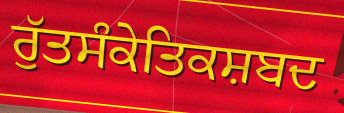
ਰੁੱਤਸੰਕੇਤਿਕਸ਼ਬਦ